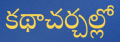
కథాచర్చల్లో